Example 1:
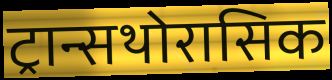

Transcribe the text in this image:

ट्रान्सथोरासिक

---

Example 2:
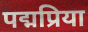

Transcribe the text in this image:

पद्मप्रिया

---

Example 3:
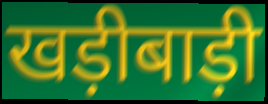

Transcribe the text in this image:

खड़ीबाड़ी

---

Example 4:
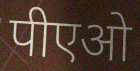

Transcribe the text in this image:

पीएओ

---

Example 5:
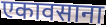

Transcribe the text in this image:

एकावसाना